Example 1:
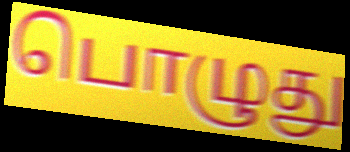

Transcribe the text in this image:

பொழுது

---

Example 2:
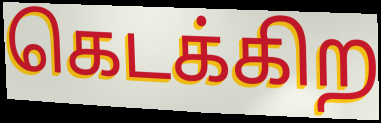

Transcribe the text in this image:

கெடக்கிற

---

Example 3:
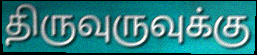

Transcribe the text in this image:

திருவுருவுக்கு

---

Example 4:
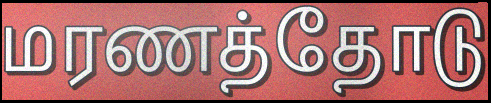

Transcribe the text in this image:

மரணத்தோடு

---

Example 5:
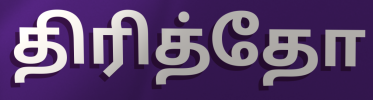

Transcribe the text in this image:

திரித்தோ